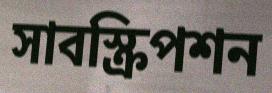
সাবস্ক্রিপশন